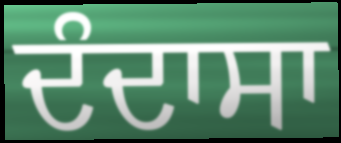
ਦੰਦਾਸਾ